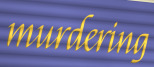
murdering